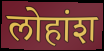
लोहांश